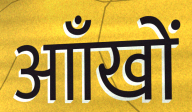
आाँखों